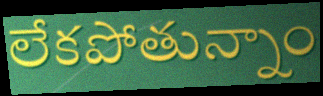
లేకపోతున్నాం